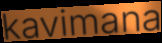
kavimana